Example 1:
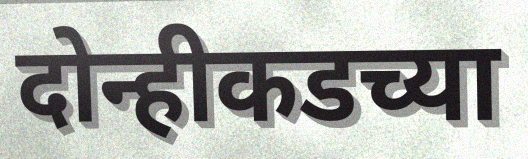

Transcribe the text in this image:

दोन्हीकडच्या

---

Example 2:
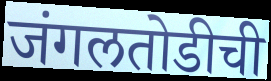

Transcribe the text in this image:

जंगलतोडीची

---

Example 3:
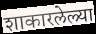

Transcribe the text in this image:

शाकारलेल्या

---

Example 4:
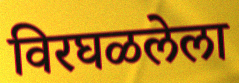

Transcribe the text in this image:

विरघळलेला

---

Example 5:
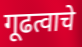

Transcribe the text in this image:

गूढत्वाचे